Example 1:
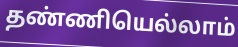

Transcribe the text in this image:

தண்ணியெல்லாம்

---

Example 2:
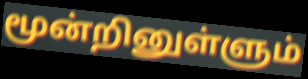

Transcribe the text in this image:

மூன்றினுள்ளும்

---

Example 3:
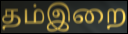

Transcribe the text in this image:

தம்இறை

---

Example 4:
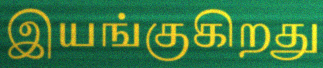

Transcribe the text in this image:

இயங்குகிறது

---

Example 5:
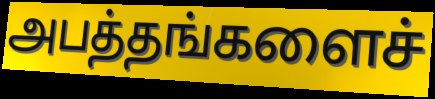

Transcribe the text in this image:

அபத்தங்களைச்